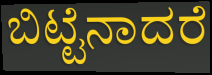
ಬಿಟ್ಟೆನಾದರೆ